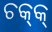
ଚକ୍‌କ୍